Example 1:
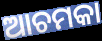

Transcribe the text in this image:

ଆଚମକା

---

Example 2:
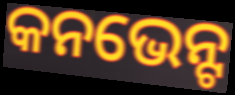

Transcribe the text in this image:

କନଭେନ୍ଟ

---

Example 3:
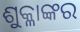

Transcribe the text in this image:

ଶୁକ୍ଳାଙ୍କର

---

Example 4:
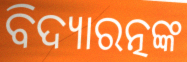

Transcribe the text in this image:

ବିଦ୍ୟାରତ୍ନଙ୍କ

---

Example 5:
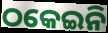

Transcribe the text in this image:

ଠକେଇନି